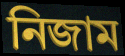
নিজাম